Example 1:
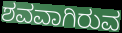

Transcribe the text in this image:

ಶವವಾಗಿರುವ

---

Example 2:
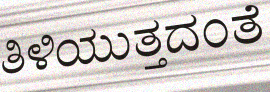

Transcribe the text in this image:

ತಿಳಿಯುತ್ತದಂತೆ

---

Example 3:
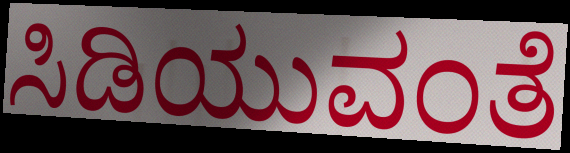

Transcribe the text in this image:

ಸಿಡಿಯುವಂತೆ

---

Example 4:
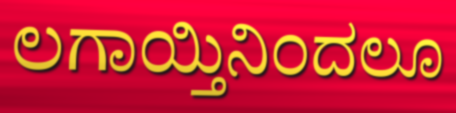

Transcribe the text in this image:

ಲಗಾಯ್ತಿನಿಂದಲೂ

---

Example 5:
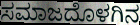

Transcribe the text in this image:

ಸಮಾಜದೊಳಗಿನ